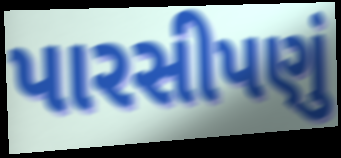
પારસીપણું